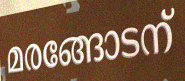
മരങ്ങോടന്